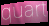
quart